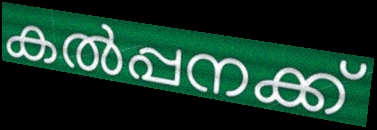
കൽപ്പനക്ക്